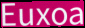
Euxoa